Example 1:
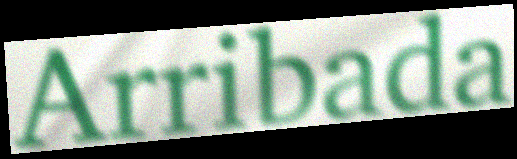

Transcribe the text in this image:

Arribada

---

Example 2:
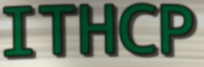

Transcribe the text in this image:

ITHCP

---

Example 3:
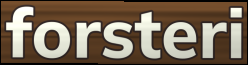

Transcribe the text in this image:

forsteri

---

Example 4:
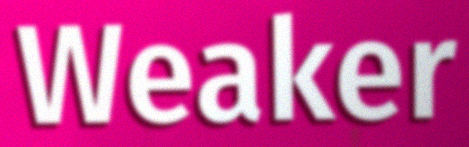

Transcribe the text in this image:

Weaker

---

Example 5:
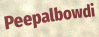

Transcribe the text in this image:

Peepalbowdi